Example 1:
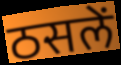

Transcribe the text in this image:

ठसलें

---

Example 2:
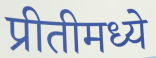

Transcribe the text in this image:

प्रीतीमध्ये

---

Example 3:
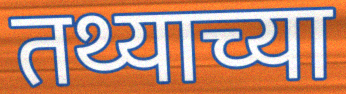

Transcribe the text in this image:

तथ्याच्या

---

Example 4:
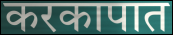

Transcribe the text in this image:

करकापात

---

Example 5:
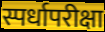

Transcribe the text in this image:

स्पर्धापरीक्षा